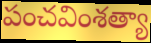
పంచవింశత్యా